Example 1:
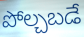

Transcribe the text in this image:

పోల్చబడే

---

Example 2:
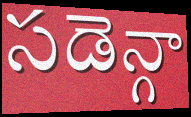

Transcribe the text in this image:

సడెన్గా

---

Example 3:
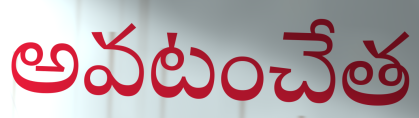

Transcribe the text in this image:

అవటంచేత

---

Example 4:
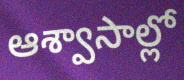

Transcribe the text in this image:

ఆశ్వాసాల్లో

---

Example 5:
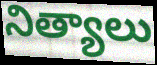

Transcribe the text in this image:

నిత్యాలు